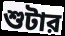
শুটার